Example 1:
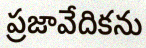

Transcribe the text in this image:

ప్రజావేదికను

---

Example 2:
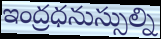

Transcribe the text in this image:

ఇంద్రధనుస్సుల్ని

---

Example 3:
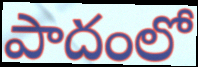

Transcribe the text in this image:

పాదంలో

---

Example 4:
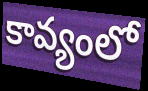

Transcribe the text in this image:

కావ్యంలో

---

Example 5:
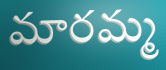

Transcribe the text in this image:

మారమ్మ